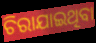
ଚିରାଯାଇଥିବା